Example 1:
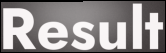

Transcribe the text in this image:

Result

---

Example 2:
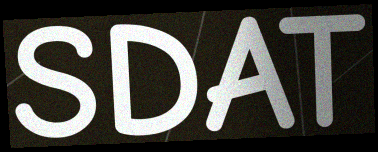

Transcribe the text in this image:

SDAT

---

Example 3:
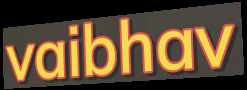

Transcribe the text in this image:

vaibhav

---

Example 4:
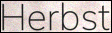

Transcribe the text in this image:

Herbst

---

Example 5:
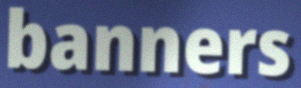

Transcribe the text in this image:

banners